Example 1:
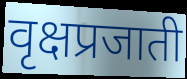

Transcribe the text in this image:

वृक्षप्रजाती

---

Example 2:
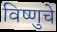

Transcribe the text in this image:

विष्णुचे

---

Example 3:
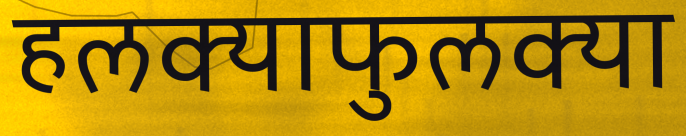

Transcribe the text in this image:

हलक्याफुलक्या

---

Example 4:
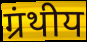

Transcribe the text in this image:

ग्रंथीय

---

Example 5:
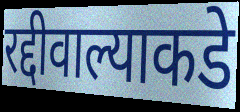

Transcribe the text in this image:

रद्दीवाल्याकडे